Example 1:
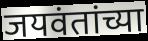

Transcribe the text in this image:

जयवंतांच्या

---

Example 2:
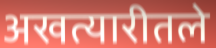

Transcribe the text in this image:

अखत्यारीतले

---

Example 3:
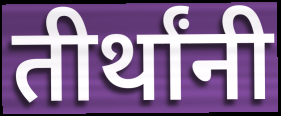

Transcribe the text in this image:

तीर्थांनी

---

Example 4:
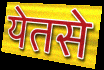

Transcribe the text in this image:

येतसे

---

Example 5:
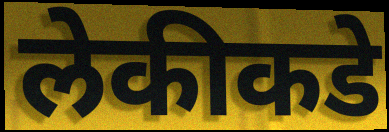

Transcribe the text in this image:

लेकीकडे